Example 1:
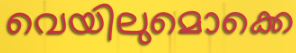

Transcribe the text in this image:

വെയിലുമൊക്കെ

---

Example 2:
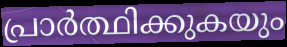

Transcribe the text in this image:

പ്രാർത്ഥിക്കുകയും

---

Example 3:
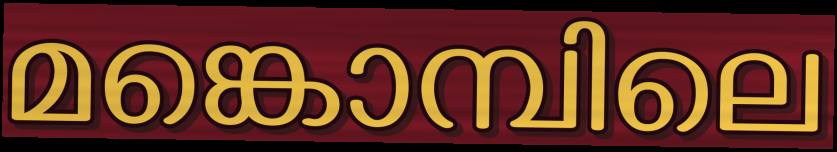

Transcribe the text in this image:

മങ്കൊമ്പിലെ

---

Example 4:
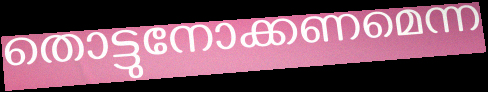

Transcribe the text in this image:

തൊട്ടുനോക്കണമെന്ന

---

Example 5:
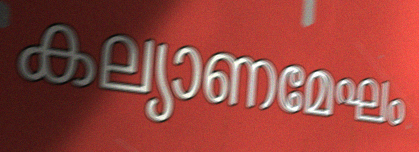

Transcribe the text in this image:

കല്യാണമേഘം